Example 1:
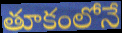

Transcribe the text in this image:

తూకంలోనే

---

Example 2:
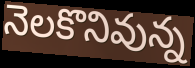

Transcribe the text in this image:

నెలకొనివున్న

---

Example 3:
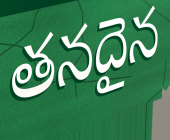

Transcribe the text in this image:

తనదైన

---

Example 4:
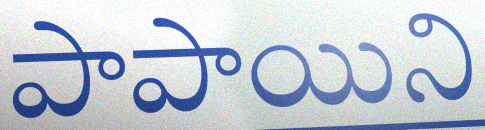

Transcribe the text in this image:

పాపాయిని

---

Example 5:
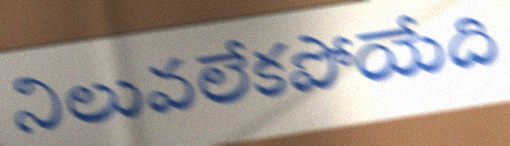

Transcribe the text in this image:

నిలువలేకపోయేది